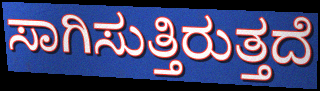
ಸಾಗಿಸುತ್ತಿರುತ್ತದೆ